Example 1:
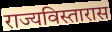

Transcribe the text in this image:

राज्यविस्तारास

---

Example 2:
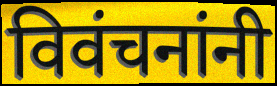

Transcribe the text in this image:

विवंचनांनी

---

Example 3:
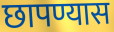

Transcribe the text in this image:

छापण्यास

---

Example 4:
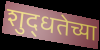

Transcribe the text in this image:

शुद्धतेच्या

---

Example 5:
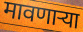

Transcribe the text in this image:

मावणाऱ्या